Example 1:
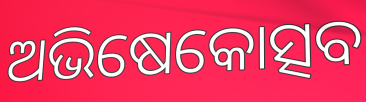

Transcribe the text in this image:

ଅଭିଷେକୋତ୍ସବ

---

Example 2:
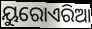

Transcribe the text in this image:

ୟୁରୋଏରିଆ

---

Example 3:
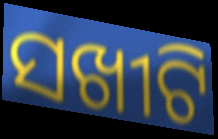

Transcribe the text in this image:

ସଖୀଟି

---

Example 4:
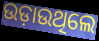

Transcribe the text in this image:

ଉଡ଼ାଉଥିଲେ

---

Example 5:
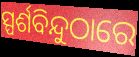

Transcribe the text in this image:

ସ୍ପର୍ଶବିନ୍ଦୁଠାରେ